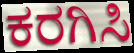
ಕರಗಿಸಿ